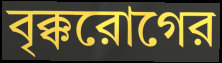
বৃক্করোগের